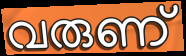
വരുണ്